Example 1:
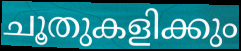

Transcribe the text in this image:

ചൂതുകളിക്കും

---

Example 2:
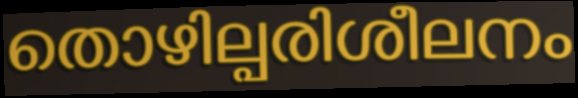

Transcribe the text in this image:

തൊഴില്പരിശീലനം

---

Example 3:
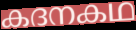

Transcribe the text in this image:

കദനകഥ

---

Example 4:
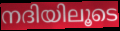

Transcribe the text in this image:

നദിയിലൂടെ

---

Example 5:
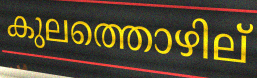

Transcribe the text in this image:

കുലത്തൊഴില്